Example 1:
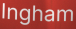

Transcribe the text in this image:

Ingham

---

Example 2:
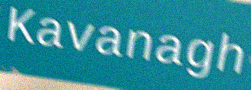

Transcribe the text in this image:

Kavanagh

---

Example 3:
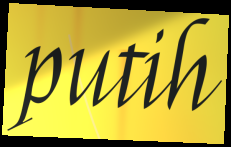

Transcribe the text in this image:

putih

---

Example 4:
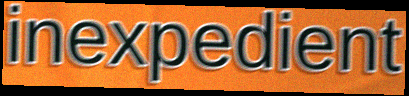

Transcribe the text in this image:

inexpedient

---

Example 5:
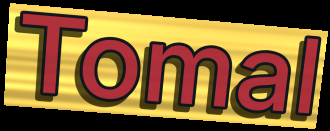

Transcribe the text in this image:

Tomal